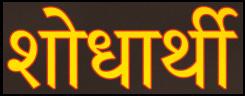
शोधार्थी